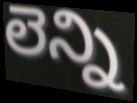
లెన్ని